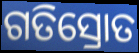
ଗତିସ୍ରୋତ